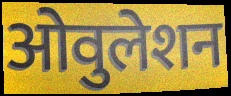
ओवुलेशन